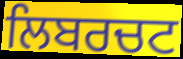
ਲਿਬਰਚਟ